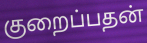
குறைப்பதன்